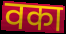
वका